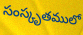
సంస్కృతములో